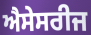
ਐਸੇਸਰੀਜ